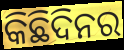
କିଛିଦିନର